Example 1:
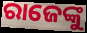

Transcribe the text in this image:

ରାଜେଙ୍କୁ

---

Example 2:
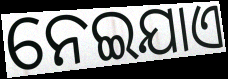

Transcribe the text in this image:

ନେଇଯାଏ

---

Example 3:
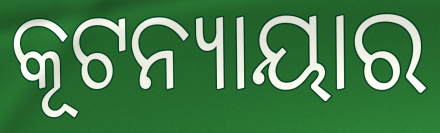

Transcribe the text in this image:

କୂଟନ୍ୟାୟାର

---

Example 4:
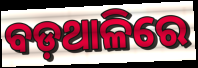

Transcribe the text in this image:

ବଡ଼ଥାଳିରେ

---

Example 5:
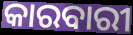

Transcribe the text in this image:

କାରବାରୀ